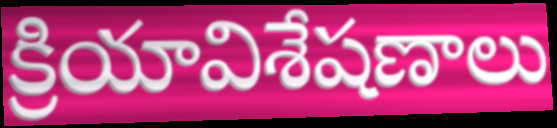
క్రియావిశేషణాలు